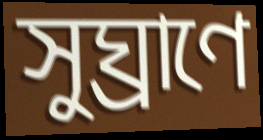
সুঘ্রাণে